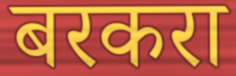
बरकरा